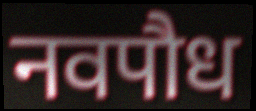
नवपौध